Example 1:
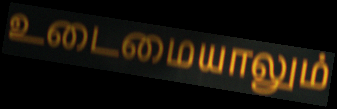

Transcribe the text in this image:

உடைமையாலும்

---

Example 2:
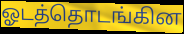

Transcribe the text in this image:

ஓடத்தொடங்கின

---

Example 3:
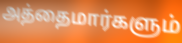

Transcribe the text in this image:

அத்தைமார்களும்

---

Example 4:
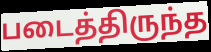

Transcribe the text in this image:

படைத்திருந்த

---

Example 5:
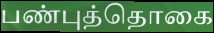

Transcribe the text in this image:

பண்புத்தொகை